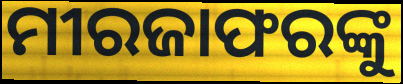
ମୀରଜାଫରଙ୍କୁ